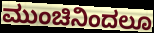
ಮುಂಚಿನಿಂದಲೂ